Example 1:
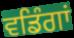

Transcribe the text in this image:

ਵਡਿੰਗਾਂ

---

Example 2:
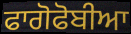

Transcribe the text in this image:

ਫਾਗੋਫੋਬੀਆ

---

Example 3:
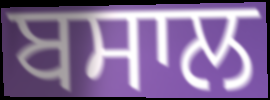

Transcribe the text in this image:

ਬਸਾਲ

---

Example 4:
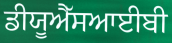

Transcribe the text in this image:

ਡੀਯੂਐੱਸਆਈਬੀ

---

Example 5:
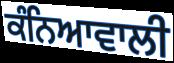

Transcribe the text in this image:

ਕੰਨਿਆਵਾਲੀ